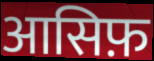
आसिफ़